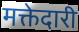
मक्तेदारी